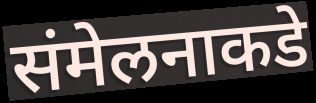
संमेलनाकडे